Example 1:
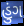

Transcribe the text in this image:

હુંગ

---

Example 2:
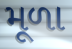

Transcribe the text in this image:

મૂળા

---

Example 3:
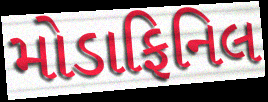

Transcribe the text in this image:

મોડાફિનિલ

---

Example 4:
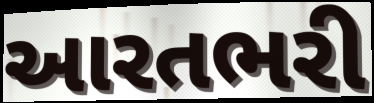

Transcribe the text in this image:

આરતભરી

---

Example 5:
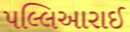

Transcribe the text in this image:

પલ્લિઆરાઈ